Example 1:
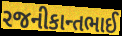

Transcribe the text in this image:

રજનીકાન્તભાઈ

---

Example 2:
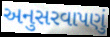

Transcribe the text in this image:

અનુસરવાપણું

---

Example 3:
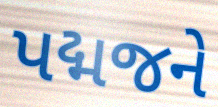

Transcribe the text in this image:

પદ્મજને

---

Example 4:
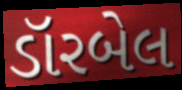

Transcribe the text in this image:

ડૉરબેલ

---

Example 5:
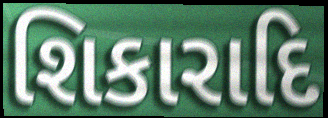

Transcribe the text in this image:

શિકારાદિ